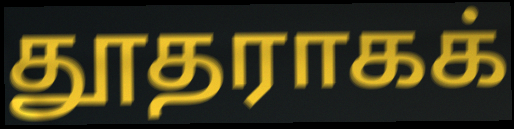
தூதராகக்